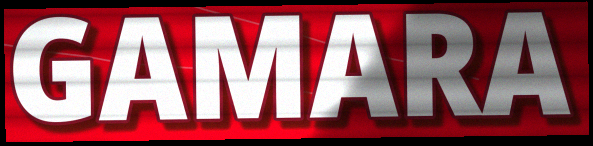
GAMARA